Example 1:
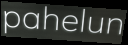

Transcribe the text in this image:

pahelun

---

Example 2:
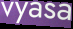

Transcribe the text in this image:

vyasa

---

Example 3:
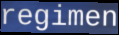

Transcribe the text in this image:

regimen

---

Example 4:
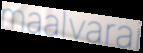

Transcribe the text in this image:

maalvarai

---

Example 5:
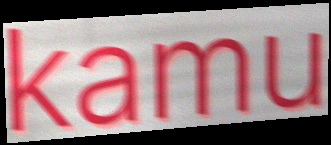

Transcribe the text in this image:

kamu